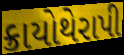
ક્રાયોથેરાપી